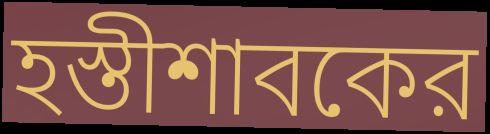
হস্তীশাবকের